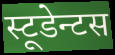
स्टूडेन्टस